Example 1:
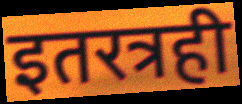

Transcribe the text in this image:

इतरत्रही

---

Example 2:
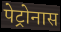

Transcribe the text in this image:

पेट्रोनास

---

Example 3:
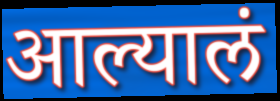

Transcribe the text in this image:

आल्यालं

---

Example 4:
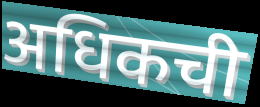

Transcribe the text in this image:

अधिकची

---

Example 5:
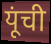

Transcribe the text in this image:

यूंची